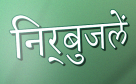
निर्बुजलें